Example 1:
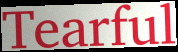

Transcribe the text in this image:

Tearful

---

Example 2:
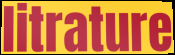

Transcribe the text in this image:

litrature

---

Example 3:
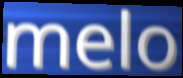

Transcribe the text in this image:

melo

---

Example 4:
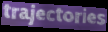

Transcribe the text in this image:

trajectories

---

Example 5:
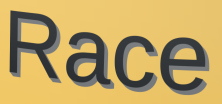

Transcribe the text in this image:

Race